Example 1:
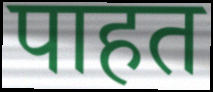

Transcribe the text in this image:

पाहत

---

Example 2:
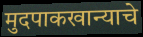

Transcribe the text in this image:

मुदपाकखान्याचे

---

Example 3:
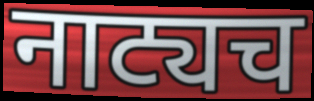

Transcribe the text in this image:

नाट्यच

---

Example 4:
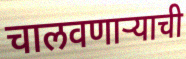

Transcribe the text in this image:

चालवणाऱ्याची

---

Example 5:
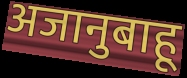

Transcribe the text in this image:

अजानुबाहू